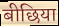
बीछिया